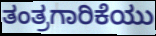
ತಂತ್ರಗಾರಿಕೆಯು